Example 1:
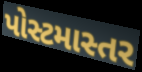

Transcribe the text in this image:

પોસ્ટમાસ્તર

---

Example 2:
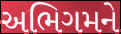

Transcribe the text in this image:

અભિગમને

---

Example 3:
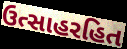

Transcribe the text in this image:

ઉત્સાહરહિત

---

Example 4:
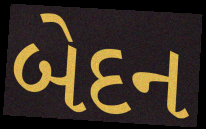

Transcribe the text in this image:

બેદન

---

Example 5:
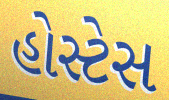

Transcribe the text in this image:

હોસ્ટેસ